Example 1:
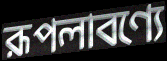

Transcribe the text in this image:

রূপলাবণ্যে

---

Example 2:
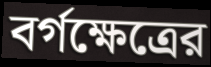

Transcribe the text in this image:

বর্গক্ষেত্রের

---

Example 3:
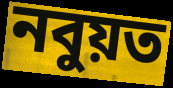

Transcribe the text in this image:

নবুয়ত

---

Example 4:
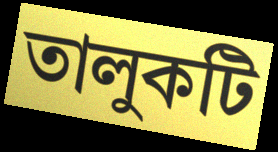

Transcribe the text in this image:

তালুকটি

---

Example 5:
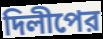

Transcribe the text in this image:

দিলীপের